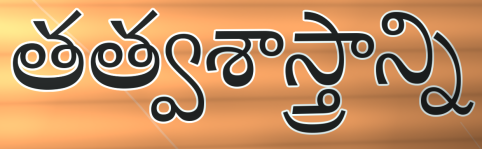
తత్వశాస్త్రాన్ని